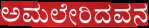
ಅಮಲೇರಿದವನ